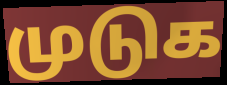
முடுக